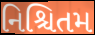
નિશ્ચિતમ